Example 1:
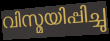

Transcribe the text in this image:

വിസ്മയിപ്പിച്ചു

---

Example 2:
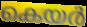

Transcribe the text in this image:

കെയർ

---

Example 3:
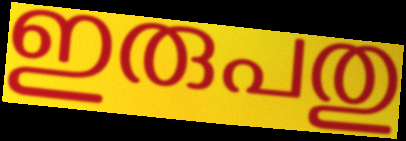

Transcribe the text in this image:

ഇരുപതു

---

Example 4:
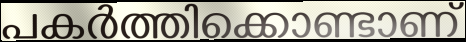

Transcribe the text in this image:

പകർത്തിക്കൊണ്ടാണ്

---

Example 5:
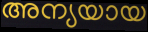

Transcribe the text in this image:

അന്യയായ